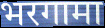
भरगामा